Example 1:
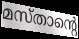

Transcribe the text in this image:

മസ്താന്റെ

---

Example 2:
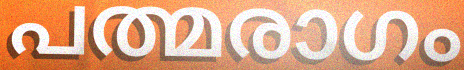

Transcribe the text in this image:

പത്മരാഗം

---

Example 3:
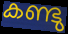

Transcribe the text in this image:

കണ്ടു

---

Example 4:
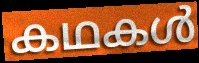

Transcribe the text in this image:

കഥകൾ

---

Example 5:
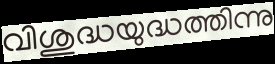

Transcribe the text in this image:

വിശുദ്ധയുദ്ധത്തിന്നു